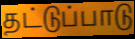
தட்டுப்பாடு